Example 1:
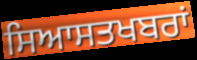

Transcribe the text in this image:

ਸਿਆਸਤਖਬਰਾਂ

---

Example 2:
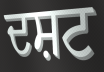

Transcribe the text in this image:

ਦਸ਼ਟ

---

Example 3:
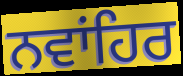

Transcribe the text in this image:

ਨਵਾਂਹਿਰ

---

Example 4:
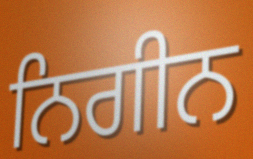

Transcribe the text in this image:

ਨਿਗੀਨ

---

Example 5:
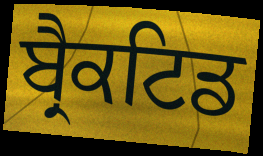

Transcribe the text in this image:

ਬ੍ਰੈਕਟਿਡ